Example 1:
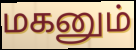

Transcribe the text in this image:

மகனும்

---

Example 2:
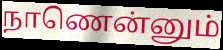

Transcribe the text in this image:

நாணென்னும்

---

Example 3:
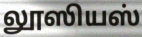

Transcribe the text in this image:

லூஸியஸ்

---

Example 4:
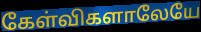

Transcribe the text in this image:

கேள்விகளாலேயே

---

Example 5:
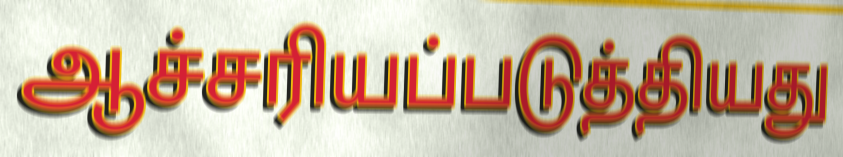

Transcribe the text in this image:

ஆச்சரியப்படுத்தியது